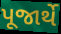
પૂજાર્થે